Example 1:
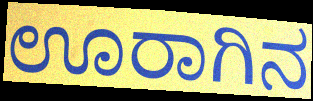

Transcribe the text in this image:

ಊರಾಗಿನ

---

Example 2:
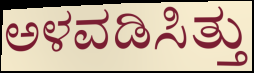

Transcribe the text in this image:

ಅಳವಡಿಸಿತ್ತು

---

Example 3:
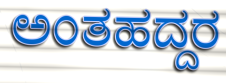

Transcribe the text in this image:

ಅಂತಹದ್ದರ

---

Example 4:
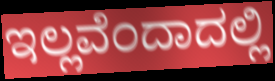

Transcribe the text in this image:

ಇಲ್ಲವೆಂದಾದಲ್ಲಿ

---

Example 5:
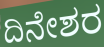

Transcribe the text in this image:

ದಿನೇಶರ